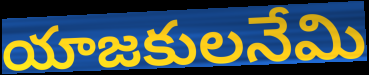
యాజకులనేమి